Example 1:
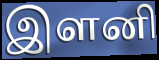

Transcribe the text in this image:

இளனி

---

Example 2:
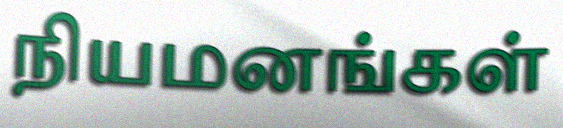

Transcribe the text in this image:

நியமனங்கள்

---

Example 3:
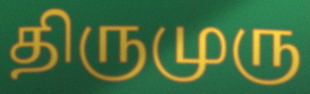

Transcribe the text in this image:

திருமுரு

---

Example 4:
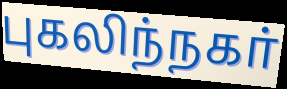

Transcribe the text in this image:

புகலிந்நகர்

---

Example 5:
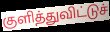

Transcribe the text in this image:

குளித்துவிட்டுச்